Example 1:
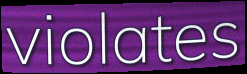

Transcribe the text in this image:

violates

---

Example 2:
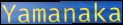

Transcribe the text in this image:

Yamanaka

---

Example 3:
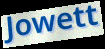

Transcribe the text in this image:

Jowett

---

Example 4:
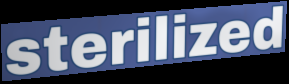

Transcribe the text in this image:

sterilized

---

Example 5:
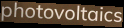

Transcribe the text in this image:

photovoltaics